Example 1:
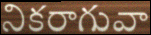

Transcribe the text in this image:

నికరాగువా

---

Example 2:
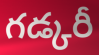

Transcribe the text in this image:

గడ్కరీ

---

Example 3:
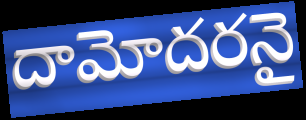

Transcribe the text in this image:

దామోదరనై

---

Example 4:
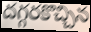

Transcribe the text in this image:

దగ్గరకొచ్చిన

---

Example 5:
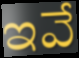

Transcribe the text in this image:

ఇవే